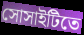
সোসাইটিতে